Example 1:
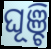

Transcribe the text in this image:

ଘୂଞ୍ଚି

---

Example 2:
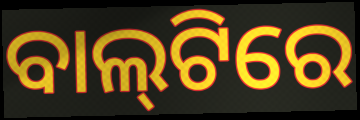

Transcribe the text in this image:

ବାଲ୍‌ଟିରେ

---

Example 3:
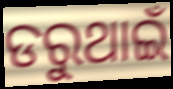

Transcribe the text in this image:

ଡରୁଥାଇଁ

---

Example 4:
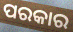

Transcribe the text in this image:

ପରକାର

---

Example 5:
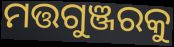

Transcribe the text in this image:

ମତ୍ତଗୁଞ୍ଜରକୁ